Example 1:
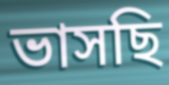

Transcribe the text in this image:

ভাসছি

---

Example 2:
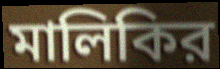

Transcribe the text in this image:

মালিকির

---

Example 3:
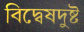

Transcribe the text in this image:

বিদ্বেষদুষ্ট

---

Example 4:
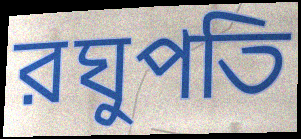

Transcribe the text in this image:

রঘুপতি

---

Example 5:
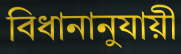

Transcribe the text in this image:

বিধানানুযায়ী